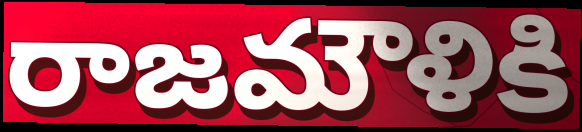
రాజమౌళికి